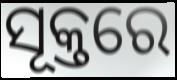
ସୂକ୍ତରେ